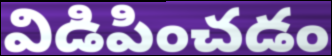
విడిపించడం